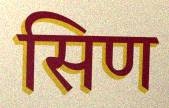
सिण